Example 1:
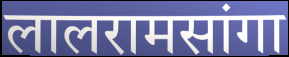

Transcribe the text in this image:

लालरामसांगा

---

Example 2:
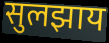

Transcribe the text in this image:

सुलझाय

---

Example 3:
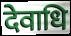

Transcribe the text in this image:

देवाधि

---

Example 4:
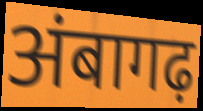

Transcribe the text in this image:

अंबागढ़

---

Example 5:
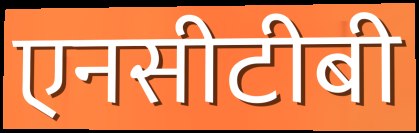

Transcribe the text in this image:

एनसीटीबी